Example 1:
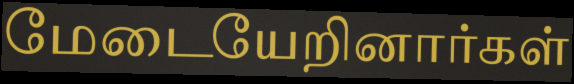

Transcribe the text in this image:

மேடையேறினார்கள்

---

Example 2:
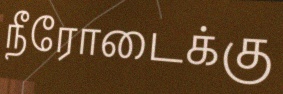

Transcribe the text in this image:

நீரோடைக்கு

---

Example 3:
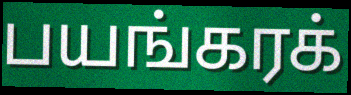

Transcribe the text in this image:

பயங்கரக்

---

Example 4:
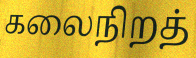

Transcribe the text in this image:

கலைநிறத்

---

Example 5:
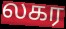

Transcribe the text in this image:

லகர